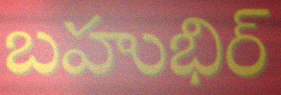
బహుభిర్